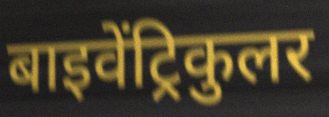
बाइवेंट्रिकुलर